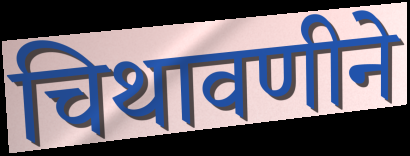
चिथावणीने